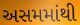
અસમમાંથી